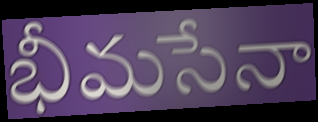
భీమసేనా